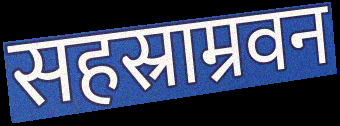
सहस्राम्रवन